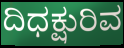
ದಿಧಕ್ಷುರಿವ